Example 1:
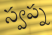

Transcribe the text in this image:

స్వప్న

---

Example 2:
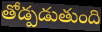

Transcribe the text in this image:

తోడ్పడుతుంది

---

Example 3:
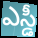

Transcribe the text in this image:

ఎస్డీ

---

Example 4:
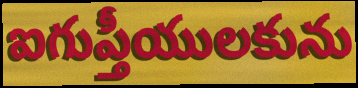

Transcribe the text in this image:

ఐగుప్తీయులకును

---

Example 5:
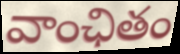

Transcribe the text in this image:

వాంఛితం